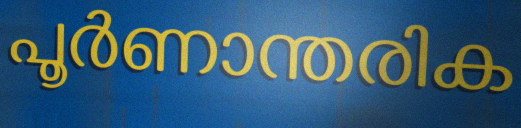
പൂർണാന്തരിക